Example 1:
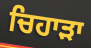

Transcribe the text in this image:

ਚਿਹਾੜਾ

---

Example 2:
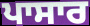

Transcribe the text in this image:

ਪਾਸਾਰ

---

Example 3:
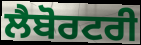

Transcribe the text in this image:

ਲੈਬੋਰਟਰੀ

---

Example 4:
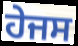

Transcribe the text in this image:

ਹੇਜਸ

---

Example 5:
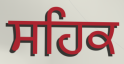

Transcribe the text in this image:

ਸਹਿਕ